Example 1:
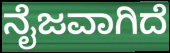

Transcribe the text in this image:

ನೈಜವಾಗಿದೆ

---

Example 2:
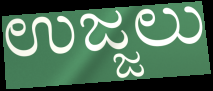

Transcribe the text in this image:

ಉಜ್ಜಲು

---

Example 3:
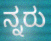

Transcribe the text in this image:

ನ್ನರು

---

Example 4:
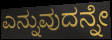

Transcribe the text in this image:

ಎನ್ನುವುದನ್ನೇ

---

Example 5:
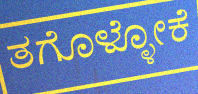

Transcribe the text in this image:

ತಗೊಳ್ಳೋಕೆ